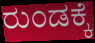
ರುಂಡಕ್ಕೆ